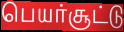
பெயர்சூட்டு